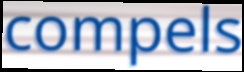
compels